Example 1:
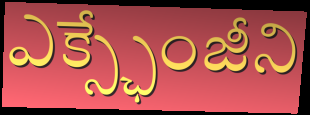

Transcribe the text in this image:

ఎక్స్ఛేంజీని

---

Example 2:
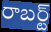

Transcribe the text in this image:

రాబర్ట్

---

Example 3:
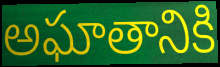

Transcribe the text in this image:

అఘాతానికి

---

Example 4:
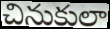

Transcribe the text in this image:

చినుకులా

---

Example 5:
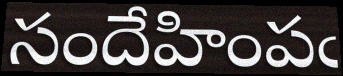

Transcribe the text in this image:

సందేహింపఁ